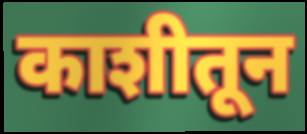
काशीतून